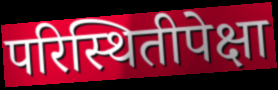
परिस्थितीपेक्षा